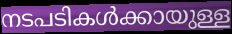
നടപടികൾക്കായുള്ള